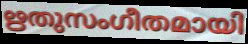
ഋതുസംഗീതമായി